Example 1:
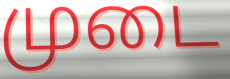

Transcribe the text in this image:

முடை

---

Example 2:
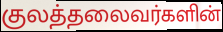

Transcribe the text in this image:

குலத்தலைவர்களின்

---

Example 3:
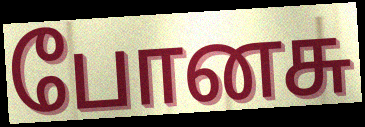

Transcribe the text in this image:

போனசு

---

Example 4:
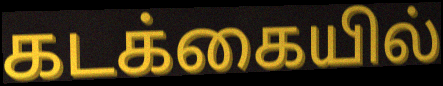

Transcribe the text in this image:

கடக்கையில்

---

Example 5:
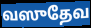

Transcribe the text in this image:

வஸுதேவ